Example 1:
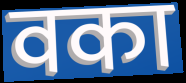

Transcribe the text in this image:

वका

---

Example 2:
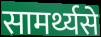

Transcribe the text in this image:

सामर्थ्यसे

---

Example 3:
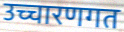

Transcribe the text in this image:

उच्चारणगत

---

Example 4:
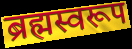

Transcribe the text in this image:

ब्रह्मस्वरूप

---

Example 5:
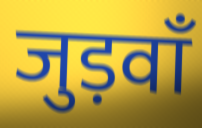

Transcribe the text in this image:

जुड़वाँ